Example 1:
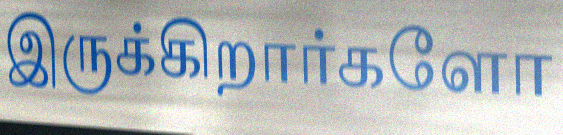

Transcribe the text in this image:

இருக்கிறார்களோ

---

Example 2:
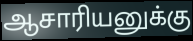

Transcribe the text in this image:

ஆசாரியனுக்கு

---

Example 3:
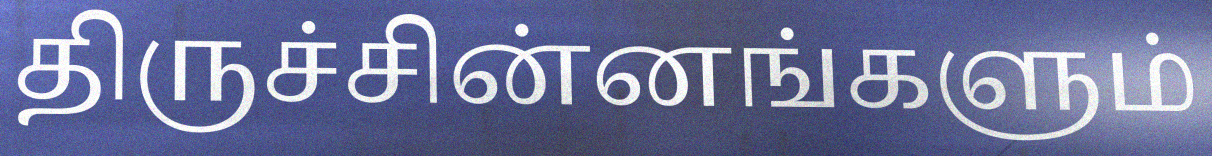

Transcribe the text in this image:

திருச்சின்னங்களும்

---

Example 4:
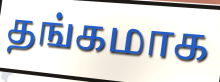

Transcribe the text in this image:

தங்கமாக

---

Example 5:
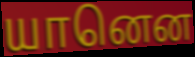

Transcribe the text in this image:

யானென